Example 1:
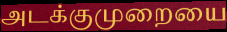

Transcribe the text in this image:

அடக்குமுறையை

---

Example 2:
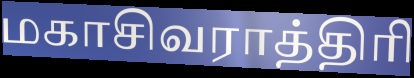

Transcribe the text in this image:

மகாசிவராத்திரி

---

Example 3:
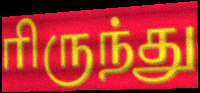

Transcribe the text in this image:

ரிருந்து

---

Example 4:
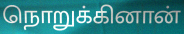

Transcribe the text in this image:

நொறுக்கினான்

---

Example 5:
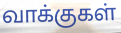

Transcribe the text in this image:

வாக்குகள்